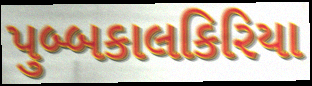
પુબ્બકાલકિરિયા